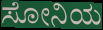
ಸೋನಿಯ